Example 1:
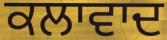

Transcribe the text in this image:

ਕਲਾਵਾਦ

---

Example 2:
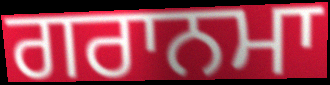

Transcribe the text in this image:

ਗਰਾਨਮਾ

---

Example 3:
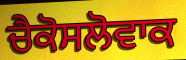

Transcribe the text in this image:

ਚੈਕੋਸਲੋਵਾਕ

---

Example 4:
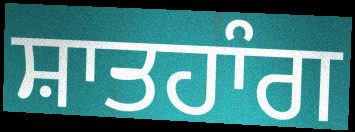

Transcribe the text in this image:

ਸ਼ਾਤਹਾੰਗ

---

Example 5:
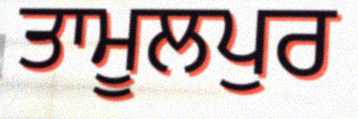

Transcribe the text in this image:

ਤਾਮੂਲਪੁਰ